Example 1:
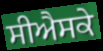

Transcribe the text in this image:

ਸੀਐਸਕੇ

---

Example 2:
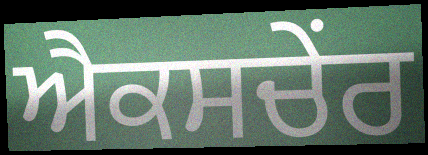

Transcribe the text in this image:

ਐਕਸਚੇਂਰ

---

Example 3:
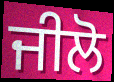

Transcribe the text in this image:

ਜੀਲੋ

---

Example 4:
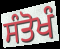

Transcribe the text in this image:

ਸੰਤੋਖੰ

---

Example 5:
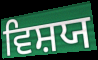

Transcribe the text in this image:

ਵਿਸ਼ਯ